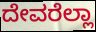
ದೇವರೆಲ್ಲಾ